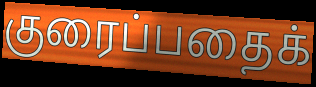
குரைப்பதைக்